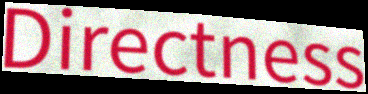
Directness